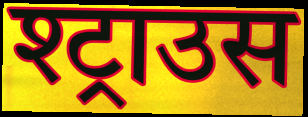
श्ट्राउस